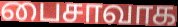
பைசாவாக